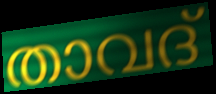
താവദ്